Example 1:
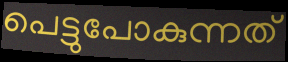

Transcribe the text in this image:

പെട്ടുപോകുന്നത്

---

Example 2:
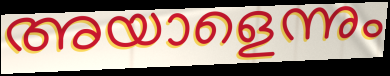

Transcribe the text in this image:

അയാളെന്നും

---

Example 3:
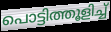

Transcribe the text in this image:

പൊട്ടിത്തൂളിച്ച്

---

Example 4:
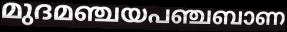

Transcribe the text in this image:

മുദമഞ്ചയപഞ്ചബാണ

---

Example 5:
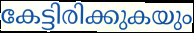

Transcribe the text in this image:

കേട്ടിരിക്കുകയും